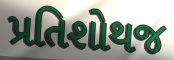
પ્રતિશોથજ